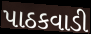
પાઠકવાડી